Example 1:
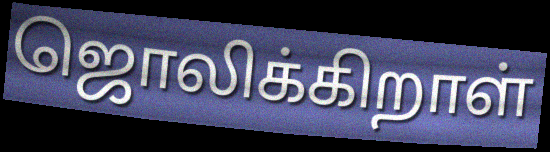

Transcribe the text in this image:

ஜொலிக்கிறாள்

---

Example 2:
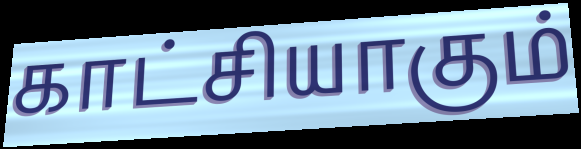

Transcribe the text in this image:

காட்சியாகும்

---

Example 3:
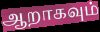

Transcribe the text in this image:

ஆறாகவும்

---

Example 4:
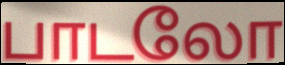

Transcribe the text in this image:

பாடலோ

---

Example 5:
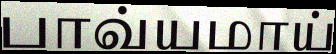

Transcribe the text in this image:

பாவ்யமாய்